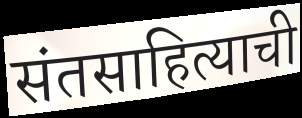
संतसाहित्याची